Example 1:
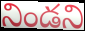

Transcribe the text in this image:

నిండని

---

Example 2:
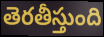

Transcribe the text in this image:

తెరతీస్తుంది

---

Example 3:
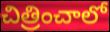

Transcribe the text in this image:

చిత్రించాలో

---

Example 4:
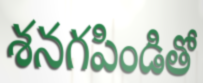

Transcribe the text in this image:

శనగపిండితో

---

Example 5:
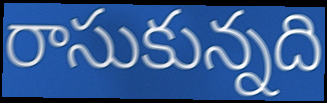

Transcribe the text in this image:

రాసుకున్నది